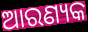
ଆରଣ୍ୟକ